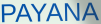
PAYANA